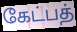
கேட்பத்